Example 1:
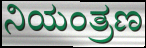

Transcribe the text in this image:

ನಿಯಂತ್ರಣ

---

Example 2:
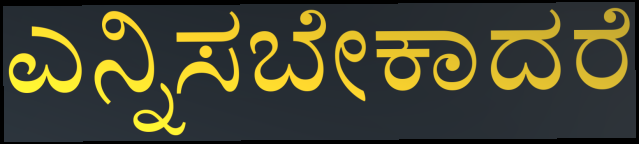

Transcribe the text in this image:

ಎನ್ನಿಸಬೇಕಾದರೆ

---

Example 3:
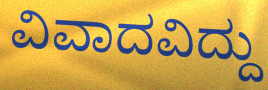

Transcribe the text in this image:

ವಿವಾದವಿದ್ದು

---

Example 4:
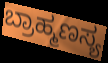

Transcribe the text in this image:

ಬ್ರಾಹ್ಮಣಸ್ಯ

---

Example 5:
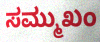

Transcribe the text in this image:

ಸಮ್ಮುಖಂ